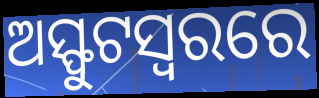
ଅସ୍ଫୁଟସ୍ୱରରେ